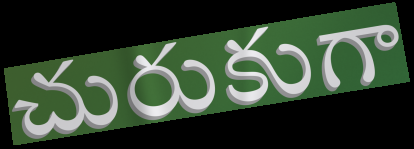
చురుకుగా